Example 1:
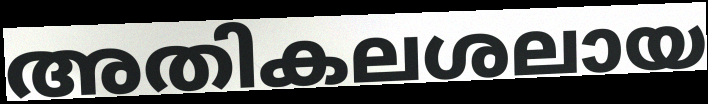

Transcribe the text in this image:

അതികലശലായ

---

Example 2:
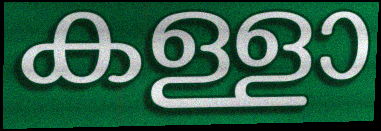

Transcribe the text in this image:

കള്ളാ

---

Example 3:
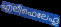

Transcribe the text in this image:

എലീഫെലേഹൂ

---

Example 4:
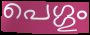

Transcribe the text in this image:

പെഗ്ഗും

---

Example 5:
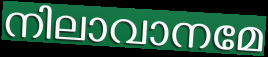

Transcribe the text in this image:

നിലാവാനമേ